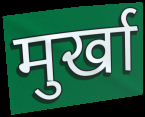
मुर्खा